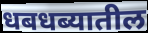
धबधब्यातील